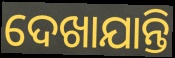
ଦେଖାଯାନ୍ତି